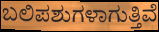
ಬಲಿಪಶುಗಳಾಗುತ್ತಿವೆ